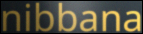
nibbana